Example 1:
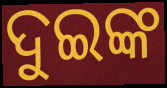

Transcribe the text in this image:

ଦୁଇଙ୍କ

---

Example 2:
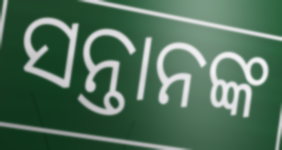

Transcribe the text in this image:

ସନ୍ତାନଙ୍କ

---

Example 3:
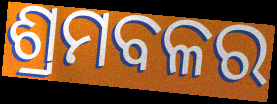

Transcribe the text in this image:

ଶ୍ରମବଳର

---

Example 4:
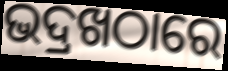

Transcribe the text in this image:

ଭଦ୍ରଖଠାରେ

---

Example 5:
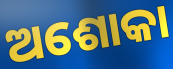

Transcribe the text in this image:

ଅଶୋକା